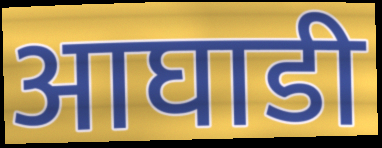
आघाडी